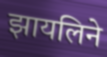
झायलिने